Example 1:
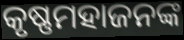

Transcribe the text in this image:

କୃଷ୍ଣମହାଜନଙ୍କ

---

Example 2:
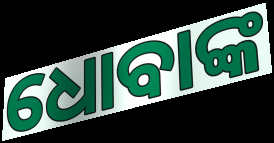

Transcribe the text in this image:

ଧୋବାଙ୍କ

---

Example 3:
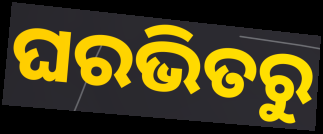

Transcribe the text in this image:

ଘରଭିତରୁ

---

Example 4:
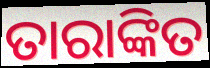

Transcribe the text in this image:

ତାରାଙ୍କିତ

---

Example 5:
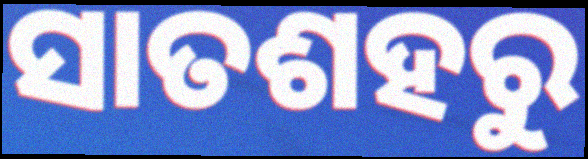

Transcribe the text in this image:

ସାତଶହରୁ